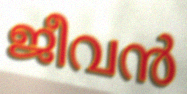
ജീവൻ